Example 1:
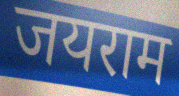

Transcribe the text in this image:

जयराम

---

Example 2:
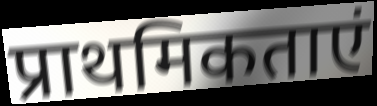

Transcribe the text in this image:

प्राथमिकताएं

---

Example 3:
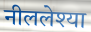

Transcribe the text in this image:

नीललेश्या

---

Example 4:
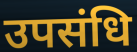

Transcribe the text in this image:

उपसंधि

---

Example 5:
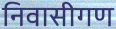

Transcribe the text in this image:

निवासीगण